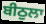
ਬੀਠੁਲਾ